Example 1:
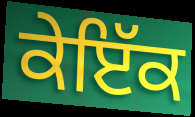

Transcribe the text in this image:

ਕੇਇੱਕ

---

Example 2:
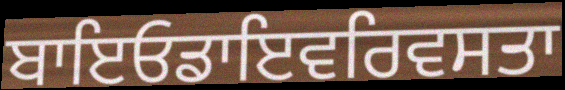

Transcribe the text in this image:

ਬਾਇਓਡਾਇਵਰਿਵਸਤਾ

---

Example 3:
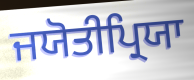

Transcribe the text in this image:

ਜਯੋਤੀਪ੍ਰਿਯਾ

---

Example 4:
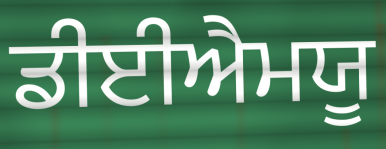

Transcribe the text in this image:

ਡੀਈਐਮਯੂ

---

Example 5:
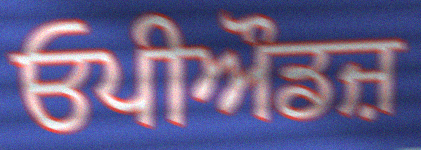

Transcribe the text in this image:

ਓਪੀਔਡਜ਼